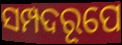
ସମ୍ପଦରୂପେ